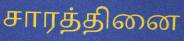
சாரத்தினை